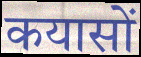
कयासों